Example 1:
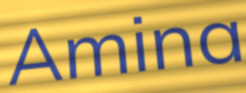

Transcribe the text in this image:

Amina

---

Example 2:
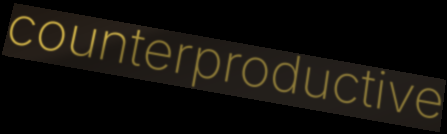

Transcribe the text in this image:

counterproductive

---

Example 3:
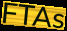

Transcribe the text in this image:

FTAs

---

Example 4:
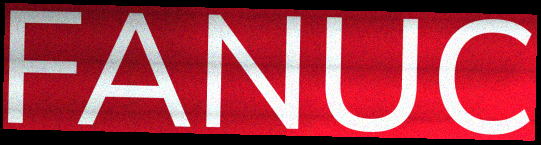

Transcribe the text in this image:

FANUC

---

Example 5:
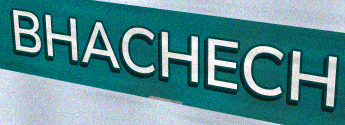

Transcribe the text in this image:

BHACHECH